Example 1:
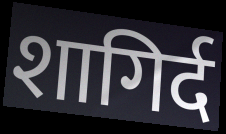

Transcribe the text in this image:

शागिर्द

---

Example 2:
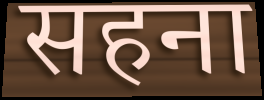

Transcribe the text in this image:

सहना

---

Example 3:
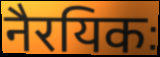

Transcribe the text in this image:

नैरयिकः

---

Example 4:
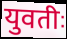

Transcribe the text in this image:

युवतीः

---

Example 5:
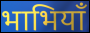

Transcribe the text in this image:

भाभियाँ